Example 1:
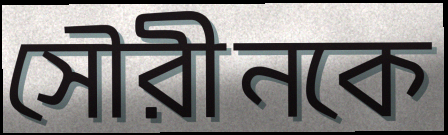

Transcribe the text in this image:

সৌরীনকে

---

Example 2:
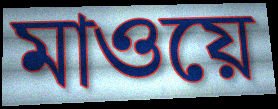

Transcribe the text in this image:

মাওয়ে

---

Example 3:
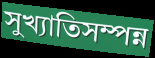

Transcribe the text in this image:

সুখ্যাতিসম্পন্ন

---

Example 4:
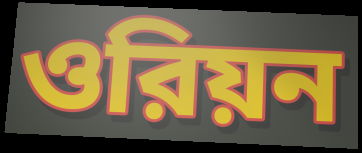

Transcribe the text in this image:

ওরিয়ন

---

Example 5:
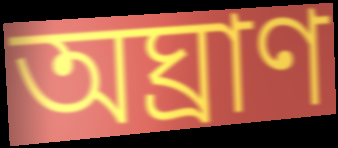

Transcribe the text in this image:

অঘ্রাণ